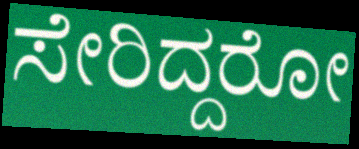
ಸೇರಿದ್ದರೋ